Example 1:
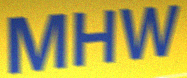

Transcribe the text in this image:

MHW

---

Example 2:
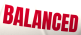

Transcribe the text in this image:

BALANCED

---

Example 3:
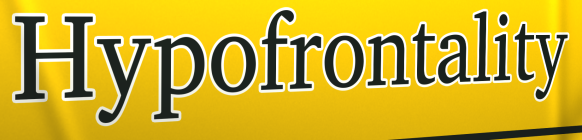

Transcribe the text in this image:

Hypofrontality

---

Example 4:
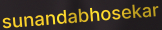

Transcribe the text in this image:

sunandabhosekar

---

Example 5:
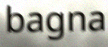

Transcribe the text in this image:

bagna